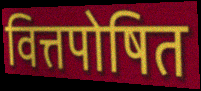
वित्तपोषित